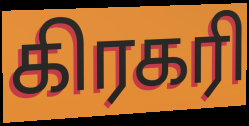
கிரகரி